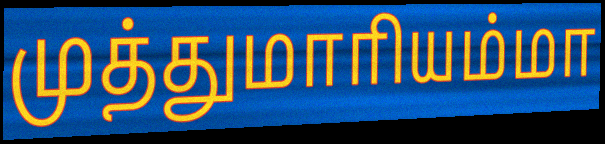
முத்துமாரியம்மா